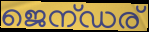
ജെന്ഡര്